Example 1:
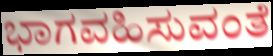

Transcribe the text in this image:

ಭಾಗವಹಿಸುವಂತೆ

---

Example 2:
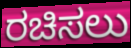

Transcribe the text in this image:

ರಚಿಸಲು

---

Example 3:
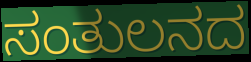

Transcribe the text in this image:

ಸಂತುಲನದ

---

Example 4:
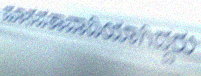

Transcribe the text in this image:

ಮಾನವತಾವಾದಿಯಾಗಿದ್ದರು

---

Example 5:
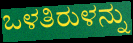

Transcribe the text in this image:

ಒಳತಿರುಳನ್ನು